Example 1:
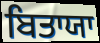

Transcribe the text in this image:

ਬਿਤਾਯਾ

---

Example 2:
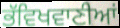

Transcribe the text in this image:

ਭੱਵਿਖਵਾਣੀਆਂ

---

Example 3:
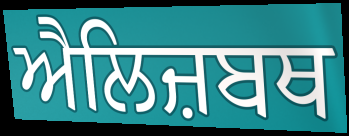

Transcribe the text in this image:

ਐਲਿਜ਼ਬਥ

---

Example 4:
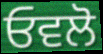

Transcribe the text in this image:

ਓਵਲੋ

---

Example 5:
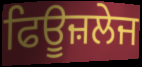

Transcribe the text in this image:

ਫਿਊਜ਼ਲੇਜ